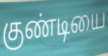
குண்டியை